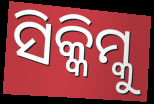
ସିକ୍କିମ୍କୁ